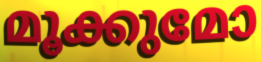
മൂക്കുമോ